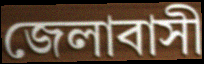
জেলাবাসী